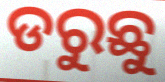
ଡରୁଛୁ